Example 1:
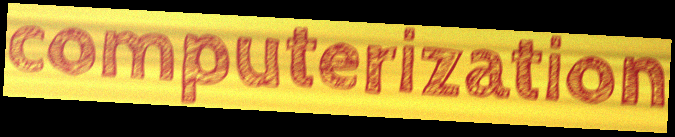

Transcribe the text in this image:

computerization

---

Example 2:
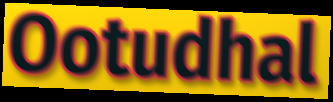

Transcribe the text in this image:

Ootudhal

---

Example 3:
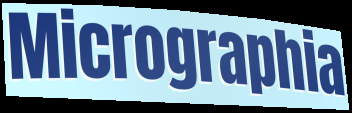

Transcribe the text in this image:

Micrographia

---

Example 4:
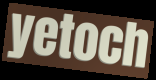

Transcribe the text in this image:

yetoch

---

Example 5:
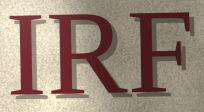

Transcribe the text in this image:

IRF